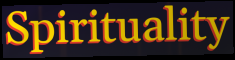
Spirituality